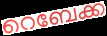
റെബേക്ക